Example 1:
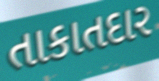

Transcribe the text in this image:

તાકાતદાર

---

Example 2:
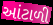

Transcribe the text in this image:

આંટાળી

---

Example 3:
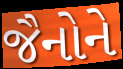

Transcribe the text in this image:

જૈનોને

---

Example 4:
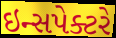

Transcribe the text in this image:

ઇન્સપેક્ટરે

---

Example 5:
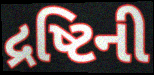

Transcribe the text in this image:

દ્રષ્ટિની